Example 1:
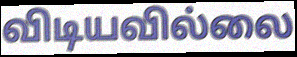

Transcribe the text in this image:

விடியவில்லை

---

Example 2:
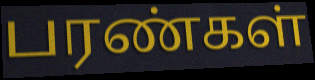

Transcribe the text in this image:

பரண்கள்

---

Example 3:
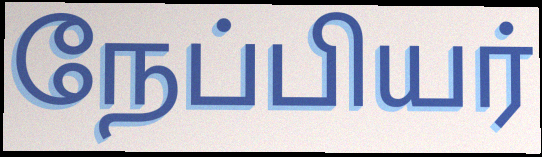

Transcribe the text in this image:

நேப்பியர்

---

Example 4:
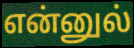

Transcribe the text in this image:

என்னுல்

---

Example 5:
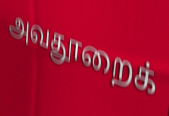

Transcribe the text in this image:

அவதூறைக்